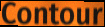
Contour